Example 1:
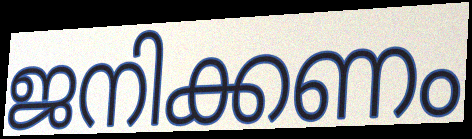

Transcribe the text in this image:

ജനിക്കണം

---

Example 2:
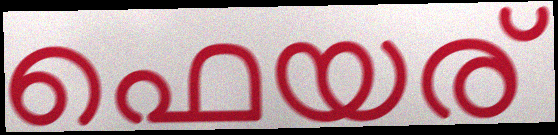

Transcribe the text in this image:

ഫെയര്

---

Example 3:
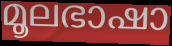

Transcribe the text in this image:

മൂലഭാഷാ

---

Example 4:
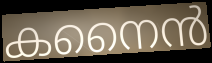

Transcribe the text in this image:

കനൈൻ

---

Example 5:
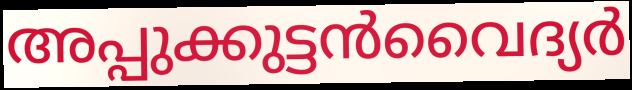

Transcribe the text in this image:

അപ്പുക്കുട്ടൻവൈദ്യർ